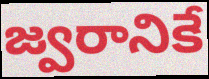
జ్వరానికే